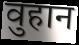
वुहान